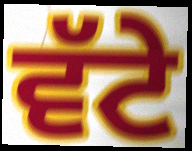
ਵੱਟੇ